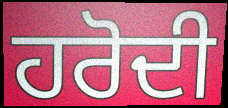
ਹਰੋਦੀ